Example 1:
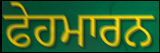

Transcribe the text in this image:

ਫੇਹਮਾਰਨ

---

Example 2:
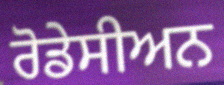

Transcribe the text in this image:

ਰੋਡੇਸੀਅਨ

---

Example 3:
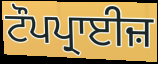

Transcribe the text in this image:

ਟੌਪਪ੍ਰਾਈਜ਼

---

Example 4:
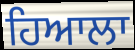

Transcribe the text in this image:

ਹਿਆਲਾ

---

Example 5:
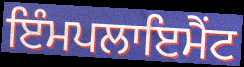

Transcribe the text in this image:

ਇੰਮਪਲਾਇਮੈਂਟ